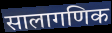
सालागणिक